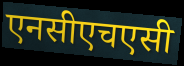
एनसीएचएसी